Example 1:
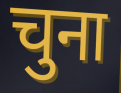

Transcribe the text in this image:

चुना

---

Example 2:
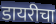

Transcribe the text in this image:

डायरीचा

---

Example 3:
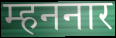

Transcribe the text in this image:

म्हननार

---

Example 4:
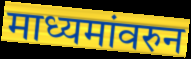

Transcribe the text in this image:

माध्यमांवरुन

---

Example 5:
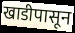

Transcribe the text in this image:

खाडीपासून